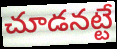
చూడనట్టే